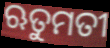
ଋତୁମତୀ